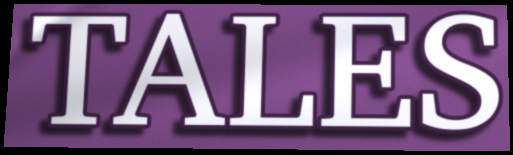
TALES